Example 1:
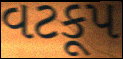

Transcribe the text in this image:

વટકૂપ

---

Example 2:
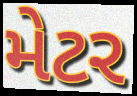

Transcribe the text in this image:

મેટર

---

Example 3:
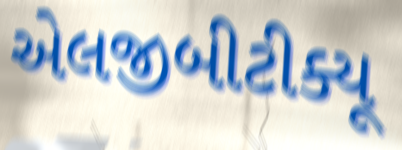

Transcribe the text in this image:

એલજીબીટીક્યૂ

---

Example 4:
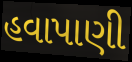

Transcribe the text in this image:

હવાપાણી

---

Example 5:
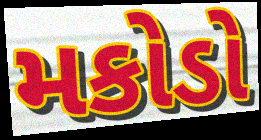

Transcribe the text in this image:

મકોડો